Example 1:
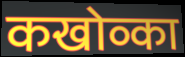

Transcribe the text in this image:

कखोव्का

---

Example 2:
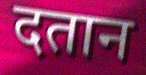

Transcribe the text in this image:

दतान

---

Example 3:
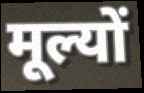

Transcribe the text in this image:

मूल्यों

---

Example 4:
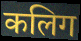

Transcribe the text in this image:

कलिग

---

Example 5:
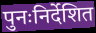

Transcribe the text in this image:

पुनःनिर्देशित